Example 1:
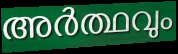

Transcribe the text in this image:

അർത്ഥവും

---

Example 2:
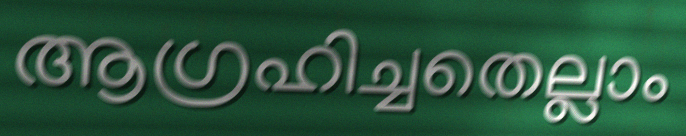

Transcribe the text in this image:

ആഗ്രഹിച്ചതെല്ലാം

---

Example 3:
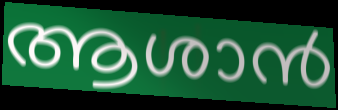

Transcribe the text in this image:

ആശാൻ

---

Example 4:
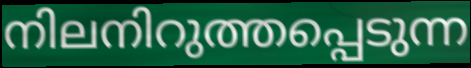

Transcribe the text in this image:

നിലനിറുത്തപ്പെടുന്ന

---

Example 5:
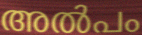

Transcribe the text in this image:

അൽപം